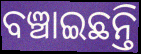
ବଞ୍ଚାଇଛନ୍ତି